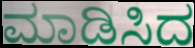
ಮಾಡಿಸಿದ